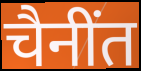
चैनींत